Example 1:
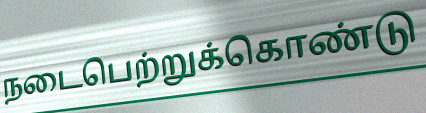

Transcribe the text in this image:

நடைபெற்றுக்கொண்டு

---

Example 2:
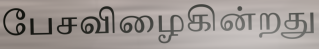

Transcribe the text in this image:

பேசவிழைகின்றது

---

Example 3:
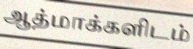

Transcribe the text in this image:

ஆத்மாக்களிடம்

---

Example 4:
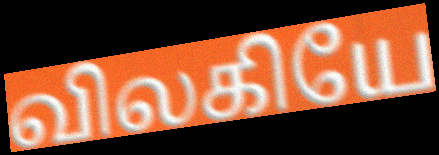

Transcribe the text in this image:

விலகியே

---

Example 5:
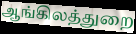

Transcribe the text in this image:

ஆங்கிலத்துறை